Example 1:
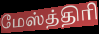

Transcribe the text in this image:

மேஸ்த்திரி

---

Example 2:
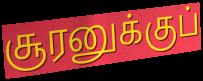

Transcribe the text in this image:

சூரனுக்குப்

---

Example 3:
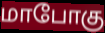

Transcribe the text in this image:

மாபோகு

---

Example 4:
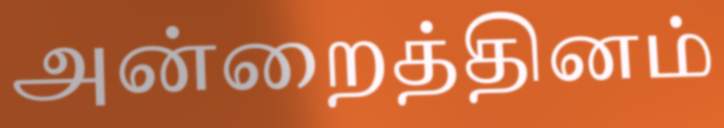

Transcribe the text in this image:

அன்றைத்தினம்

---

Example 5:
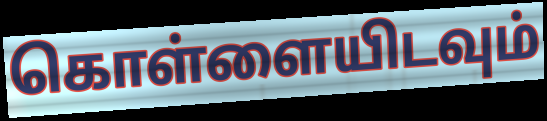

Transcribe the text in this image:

கொள்ளையிடவும்